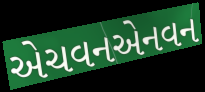
એચવનએનવન